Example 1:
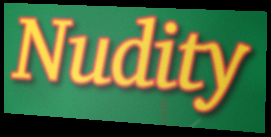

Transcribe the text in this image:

Nudity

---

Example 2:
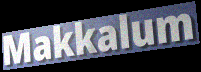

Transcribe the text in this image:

Makkalum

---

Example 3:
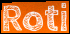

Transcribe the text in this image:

Roti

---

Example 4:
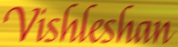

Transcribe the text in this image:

Vishleshan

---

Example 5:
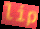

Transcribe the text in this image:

lip